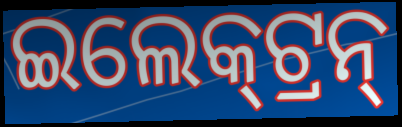
ଇଲେକ୍‌ଟ୍ରନ୍